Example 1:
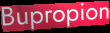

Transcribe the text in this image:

Bupropion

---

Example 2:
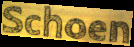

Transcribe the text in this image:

Schoen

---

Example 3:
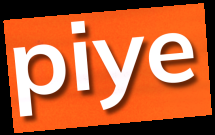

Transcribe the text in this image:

piye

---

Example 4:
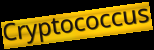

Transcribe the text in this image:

Cryptococcus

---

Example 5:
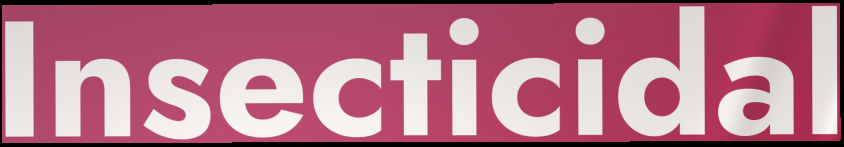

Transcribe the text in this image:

Insecticidal